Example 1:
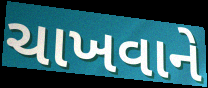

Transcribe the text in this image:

ચાખવાને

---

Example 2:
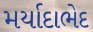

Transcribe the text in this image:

મર્યાદાભેદ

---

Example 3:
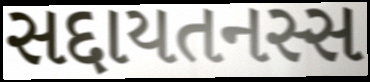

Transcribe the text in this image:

સદ્દાયતનસ્સ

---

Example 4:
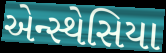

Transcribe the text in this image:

એન્સ્થેસિયા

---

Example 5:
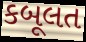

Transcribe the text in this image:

કબૂલત